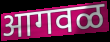
आगवळ